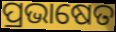
ପ୍ରଭାଷେତ